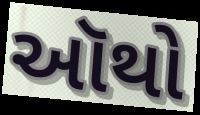
ઑથો